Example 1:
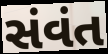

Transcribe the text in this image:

સંવંત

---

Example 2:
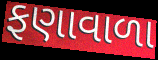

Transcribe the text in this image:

ફણાવાળા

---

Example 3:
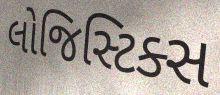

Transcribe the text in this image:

લોજિસ્ટિક્સ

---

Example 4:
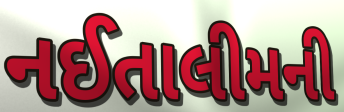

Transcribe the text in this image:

નઈતાલીમની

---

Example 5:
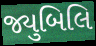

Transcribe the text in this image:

જ્યુબિલિ